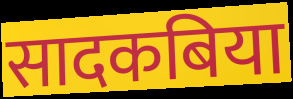
सादकबिया